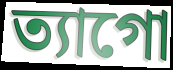
ত্যাগো